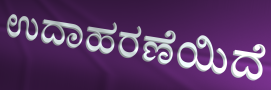
ಉದಾಹರಣೆಯಿದೆ